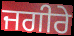
ਜਗੀਰੇ